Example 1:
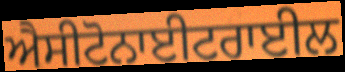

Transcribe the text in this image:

ਐਸੀਟੋਨਾਈਟਰਾਈਲ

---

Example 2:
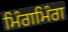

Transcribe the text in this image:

ਮਿੰਗਮਿੰਗ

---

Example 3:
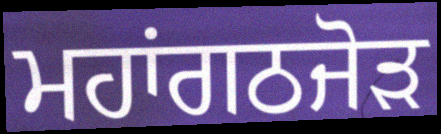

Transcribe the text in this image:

ਮਹਾਂਗਠਜੋਡ਼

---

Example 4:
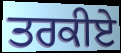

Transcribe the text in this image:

ਤਰਕੀਏ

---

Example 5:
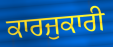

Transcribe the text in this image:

ਕਾਰਜੁਕਾਰੀ